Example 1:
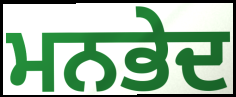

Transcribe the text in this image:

ਮਨਭੇਦ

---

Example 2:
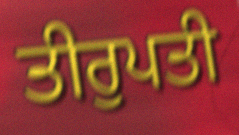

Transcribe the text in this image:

ਤੀਰੁਪਤੀ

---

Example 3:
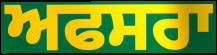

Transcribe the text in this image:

ਅਫਸਰਾ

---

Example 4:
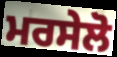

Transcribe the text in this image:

ਮਰਸੇਲੋ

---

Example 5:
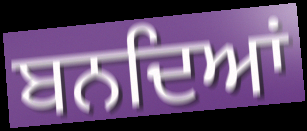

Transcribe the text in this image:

ਬਨਦਿਆਂ